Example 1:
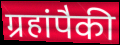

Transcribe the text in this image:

ग्रहांपैकी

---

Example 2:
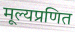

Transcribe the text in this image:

मूल्यप्रणित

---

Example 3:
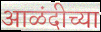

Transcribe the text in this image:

आळंदीच्या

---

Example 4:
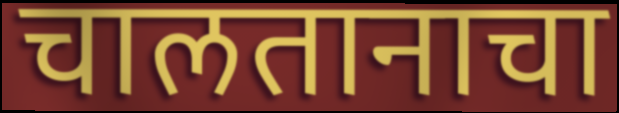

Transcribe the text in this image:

चालतानाचा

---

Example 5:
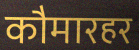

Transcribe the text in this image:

कौमारहर